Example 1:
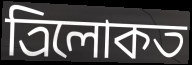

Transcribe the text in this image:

ত্ৰিলোকত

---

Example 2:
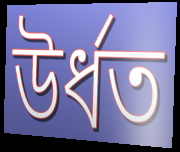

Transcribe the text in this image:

উৰ্ধত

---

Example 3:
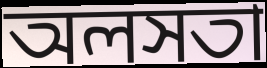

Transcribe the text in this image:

অলসতা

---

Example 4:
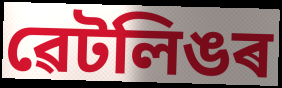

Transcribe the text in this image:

ৱেটলিঙৰ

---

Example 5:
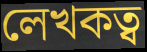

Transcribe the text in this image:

লেখকত্ব